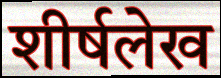
शीर्षलेख